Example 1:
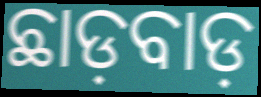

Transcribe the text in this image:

ଛାଡ଼ବାଡ଼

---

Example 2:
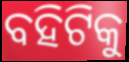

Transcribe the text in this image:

ବହିଟିକୁ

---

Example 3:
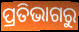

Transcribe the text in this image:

ପ୍ରତିଭାଗରୁ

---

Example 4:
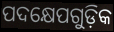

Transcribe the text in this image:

ପଦକ୍ଷେପଗୁଡ଼ିକ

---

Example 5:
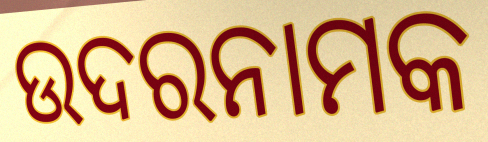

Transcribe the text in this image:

ଉଦରନାମକ